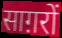
साग़रों